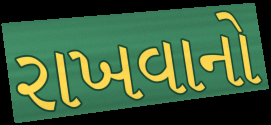
રાખવાનો